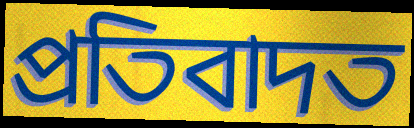
প্ৰতিবাদত